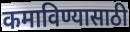
कमाविण्यासाठी